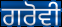
ਗਰੋਵੀ